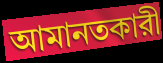
আমানতকারী